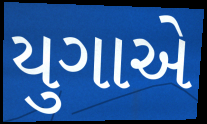
યુગાએ